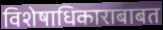
विशेषाधिकाराबाबत